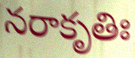
నరాకృతిః